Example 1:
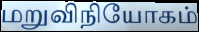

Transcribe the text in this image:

மறுவிநியோகம்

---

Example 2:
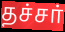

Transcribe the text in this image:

தச்சர்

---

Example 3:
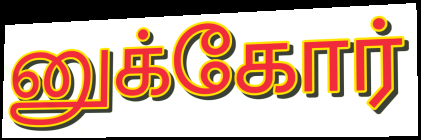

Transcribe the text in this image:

னுக்கோர்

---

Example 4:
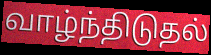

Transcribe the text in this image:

வாழ்ந்திடுதல்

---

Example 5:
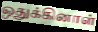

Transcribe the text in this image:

ஒதுக்கினாள்